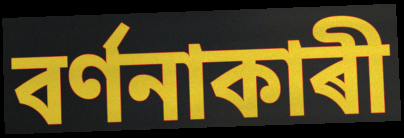
বৰ্ণনাকাৰী